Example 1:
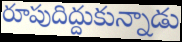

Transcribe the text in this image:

రూపుదిద్దుకున్నాడు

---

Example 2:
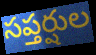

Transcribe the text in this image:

సప్తర్షుల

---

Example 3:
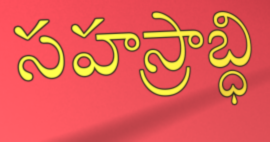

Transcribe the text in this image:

సహస్రాబ్ధి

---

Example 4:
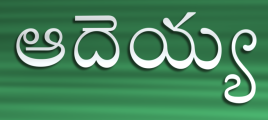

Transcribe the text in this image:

ఆదెయ్య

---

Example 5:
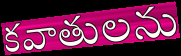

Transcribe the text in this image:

కవాతులను